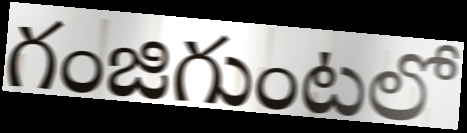
గంజిగుంటలో